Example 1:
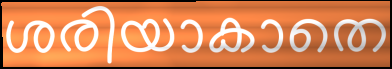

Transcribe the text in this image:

ശരിയാകാതെ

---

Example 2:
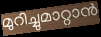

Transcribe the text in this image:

മുറിച്ചുമാറ്റാൻ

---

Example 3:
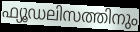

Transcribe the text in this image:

ഫ്യൂഡലിസത്തിനും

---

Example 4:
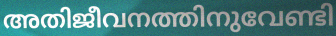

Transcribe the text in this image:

അതിജീവനത്തിനുവേണ്ടി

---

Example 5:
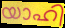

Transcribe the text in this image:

യാഹി